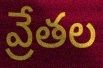
వ్రేతల